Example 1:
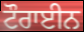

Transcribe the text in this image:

ਟੌਰਾਈਨ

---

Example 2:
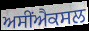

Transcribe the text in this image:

ਅਸੀਂਐਕਸਲ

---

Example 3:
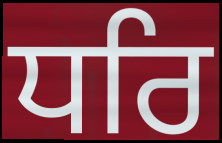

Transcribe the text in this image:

ਧਰਿ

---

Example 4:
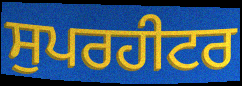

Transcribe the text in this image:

ਸੁਪਰਹੀਟਰ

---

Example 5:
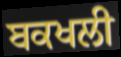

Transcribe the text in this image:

ਬਕਖਲੀ